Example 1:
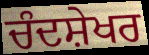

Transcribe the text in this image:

ਚੰਦਸ਼ੇਖਰ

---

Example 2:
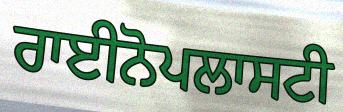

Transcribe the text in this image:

ਰਾਈਨੋਪਲਾਸਟੀ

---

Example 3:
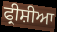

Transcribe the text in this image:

ਫ੍ਰੀਸ਼ੀਆ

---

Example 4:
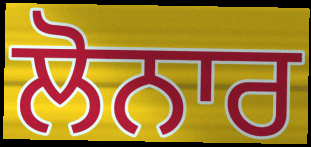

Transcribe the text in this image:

ਲੋਨਾਰ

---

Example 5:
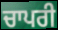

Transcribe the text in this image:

ਚਾਪਰੀ